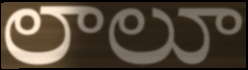
లాలూ